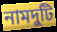
নামদুটি